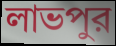
লাভপুর